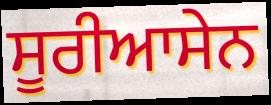
ਸੂਰੀਆਸੇਨ